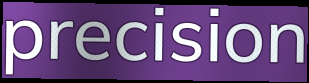
precision